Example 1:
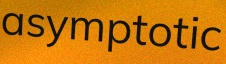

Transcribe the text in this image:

asymptotic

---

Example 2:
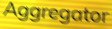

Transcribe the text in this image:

Aggregator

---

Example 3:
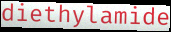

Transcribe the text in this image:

diethylamide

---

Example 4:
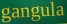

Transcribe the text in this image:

gangula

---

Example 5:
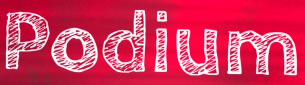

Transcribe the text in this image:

Podium